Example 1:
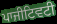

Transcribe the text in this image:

ਪਾਜੀਟਿਵਟੀ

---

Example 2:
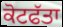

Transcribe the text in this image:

ਕੋਟਫੱਤਾ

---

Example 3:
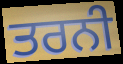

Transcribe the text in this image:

ਤਰਨੀ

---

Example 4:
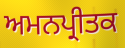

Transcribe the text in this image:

ਅਮਨਪ੍ਰੀਤਕ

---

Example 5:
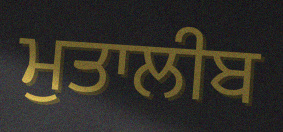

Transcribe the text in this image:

ਮੁਤਾਲੀਬ